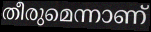
തീരുമെന്നാണ്